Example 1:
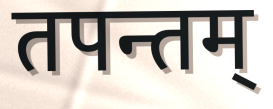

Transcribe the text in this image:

तपन्तम्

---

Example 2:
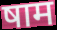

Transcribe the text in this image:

षाम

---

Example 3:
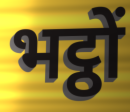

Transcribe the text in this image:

भट्ठों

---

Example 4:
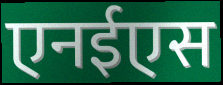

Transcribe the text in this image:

एनईएस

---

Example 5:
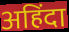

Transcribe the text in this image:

अहिंदा